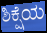
ಶಿಕ್ಷೆಯ